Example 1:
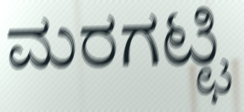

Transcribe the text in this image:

ಮರಗಟ್ಟಿ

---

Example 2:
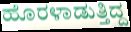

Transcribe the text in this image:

ಹೊರಳಾಡುತ್ತಿದ್ದ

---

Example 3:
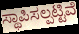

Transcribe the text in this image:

ಸ್ಥಾಪಿಸಲ್ಪಟ್ಟಿವೆ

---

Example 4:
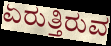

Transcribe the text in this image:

ಏರುತ್ತಿರುವ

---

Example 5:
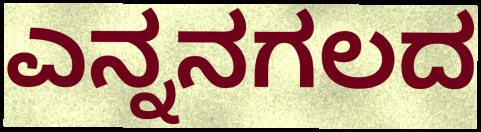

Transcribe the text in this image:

ಎನ್ನನಗಲದ